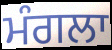
ਮੰਗਲਾ